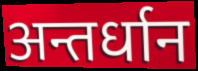
अन्तर्धान